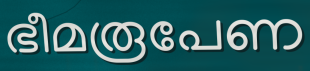
ഭീമരൂപേണ